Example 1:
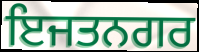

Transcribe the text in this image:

ਇਜਤਨਗਰ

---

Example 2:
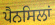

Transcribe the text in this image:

ਪੈਨਸਿਲਾਂ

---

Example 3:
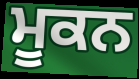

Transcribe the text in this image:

ਮੂਕਨ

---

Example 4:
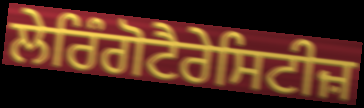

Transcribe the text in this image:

ਲੇਰਿੰਗੋਟੈਰੇਸਿਟੀਜ਼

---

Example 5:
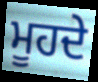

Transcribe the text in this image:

ਮੂਹਦੇ